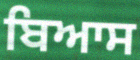
ਬਿਆਸ